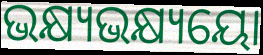
ଭକ୍ଷ୍ୟଭକ୍ଷ୍ୟୟୋ